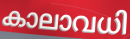
കാലാവധി